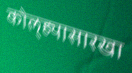
कोल्ह्यासारखा